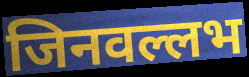
जिनवल्लभ